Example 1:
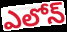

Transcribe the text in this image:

ఎలోన్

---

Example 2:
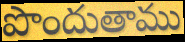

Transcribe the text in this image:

పొందుతాము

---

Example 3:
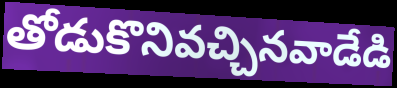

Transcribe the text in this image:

తోడుకొనివచ్చినవాడేడి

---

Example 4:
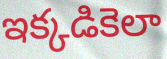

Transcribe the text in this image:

ఇక్కడికెలా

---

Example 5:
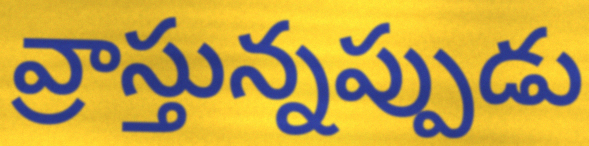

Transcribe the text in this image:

వ్రాస్తున్నప్పుడు